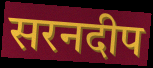
सरनदीप